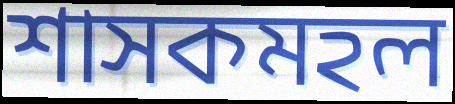
শাসকমহল